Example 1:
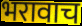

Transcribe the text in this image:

भरावाच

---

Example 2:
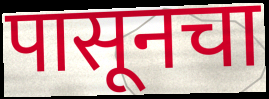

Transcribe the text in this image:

पासूनचा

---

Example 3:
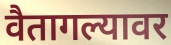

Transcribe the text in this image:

वैतागल्यावर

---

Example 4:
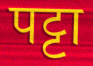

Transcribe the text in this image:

पट्टा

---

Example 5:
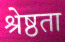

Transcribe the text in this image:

श्रेष्ठता